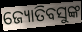
ଜ୍ୟୋତିବସୁଙ୍କ